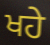
ਖਹੇ